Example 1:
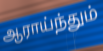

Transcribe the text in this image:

ஆராய்ந்தும்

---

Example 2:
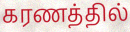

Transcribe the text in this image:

கரணத்தில்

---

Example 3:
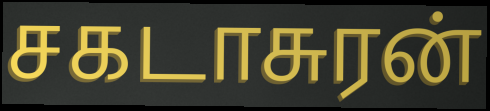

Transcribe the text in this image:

சகடாசுரன்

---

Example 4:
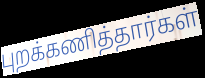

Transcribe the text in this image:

புறக்கணித்தார்கள்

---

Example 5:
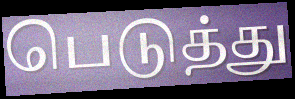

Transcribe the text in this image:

பெடுத்து